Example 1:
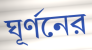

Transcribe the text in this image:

ঘূর্ণনের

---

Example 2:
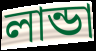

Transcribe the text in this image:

লান্ডা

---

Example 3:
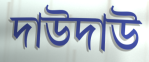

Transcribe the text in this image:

দাউদাউ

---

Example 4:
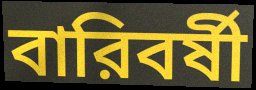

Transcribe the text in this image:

বারিবর্ষী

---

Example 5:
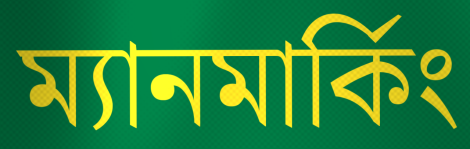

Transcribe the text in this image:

ম্যানমার্কিং